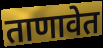
ताणावेत